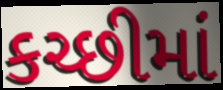
કચ્છીમાં